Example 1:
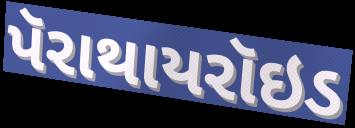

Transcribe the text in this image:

પૅરાથાયરૉઇડ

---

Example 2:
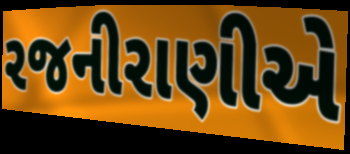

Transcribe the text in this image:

રજનીરાણીએ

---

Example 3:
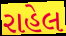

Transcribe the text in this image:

રાહેલ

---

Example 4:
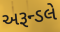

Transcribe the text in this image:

અરૂન્ડલે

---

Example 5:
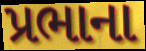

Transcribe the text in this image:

પ્રભાના